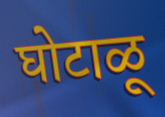
घोटाळू